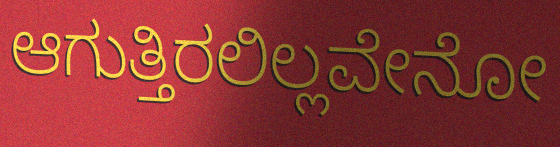
ಆಗುತ್ತಿರಲಿಲ್ಲವೇನೋ